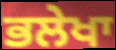
ਭਲੇਖਾ